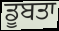
ਡੂਬਤਾ